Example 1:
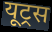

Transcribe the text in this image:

यूट्रस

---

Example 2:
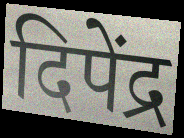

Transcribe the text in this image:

दिपेंद्र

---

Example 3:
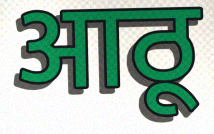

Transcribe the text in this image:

आठू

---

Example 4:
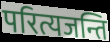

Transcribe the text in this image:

परित्यजन्ति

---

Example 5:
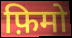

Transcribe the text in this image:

फ़िमो